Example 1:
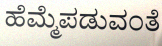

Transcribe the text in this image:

ಹೆಮ್ಮೆಪಡುವಂತೆ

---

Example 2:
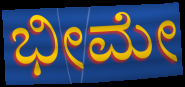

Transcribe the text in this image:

ಭೀಮೇ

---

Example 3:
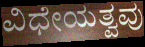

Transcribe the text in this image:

ವಿಧೇಯತ್ವವು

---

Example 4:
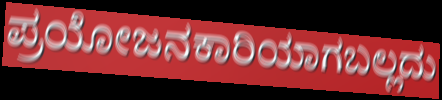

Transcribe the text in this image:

ಪ್ರಯೋಜನಕಾರಿಯಾಗಬಲ್ಲದು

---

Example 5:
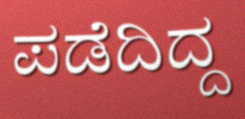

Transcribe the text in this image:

ಪಡೆದಿದ್ದ